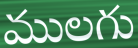
ములగు